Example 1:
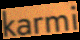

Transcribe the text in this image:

karmi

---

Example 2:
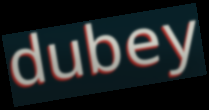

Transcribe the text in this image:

dubey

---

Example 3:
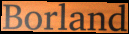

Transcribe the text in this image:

Borland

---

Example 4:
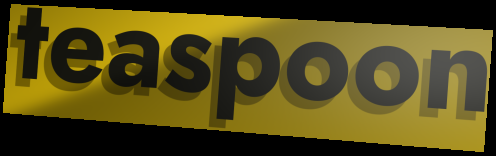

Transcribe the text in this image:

teaspoon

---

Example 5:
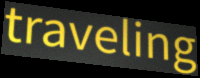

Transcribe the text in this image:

traveling